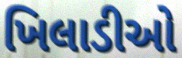
ખિલાડીઓ